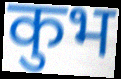
कुभ